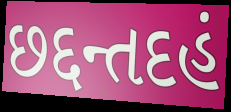
છદ્દન્તદહં